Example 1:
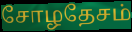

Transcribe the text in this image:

சோழதேசம்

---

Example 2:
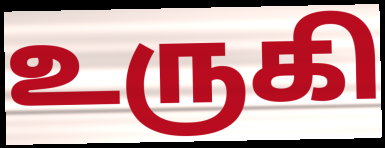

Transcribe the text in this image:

உருகி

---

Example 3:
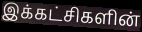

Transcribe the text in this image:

இக்கட்சிகளின்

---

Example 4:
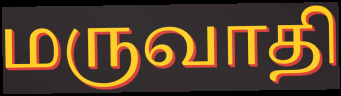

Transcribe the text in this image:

மருவாதி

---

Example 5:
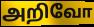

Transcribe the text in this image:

அறிவோ